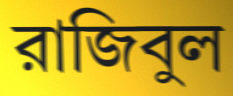
রাজিবুল